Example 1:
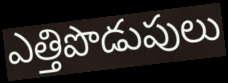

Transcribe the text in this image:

ఎత్తిపొడుపులు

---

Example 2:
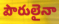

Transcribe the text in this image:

పౌరులైనా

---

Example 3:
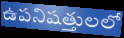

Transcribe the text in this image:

ఉపనిషత్తులలో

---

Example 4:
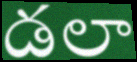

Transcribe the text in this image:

డలా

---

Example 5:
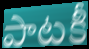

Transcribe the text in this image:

పాటకీ